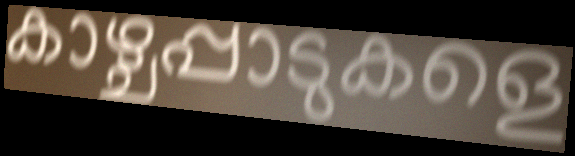
കാഴ്ചപ്പാടുകളെ